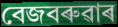
বেজবৰুৱাৰ